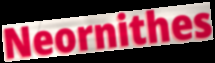
Neornithes